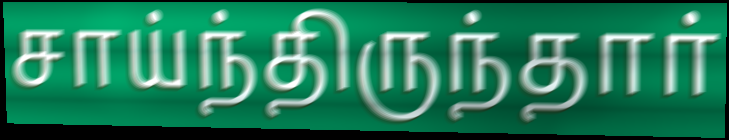
சாய்ந்திருந்தார்